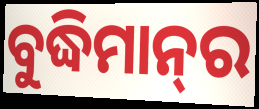
ବୁଦ୍ଧିମାନ୍‍ର